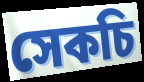
সেকচি